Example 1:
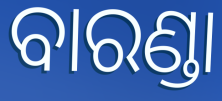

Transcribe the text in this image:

ବାରଣ୍ଡା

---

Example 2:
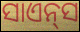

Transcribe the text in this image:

ସାଏନ୍‌ସ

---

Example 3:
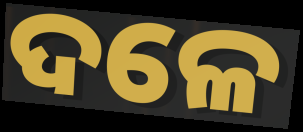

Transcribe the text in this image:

ଦଳେ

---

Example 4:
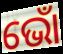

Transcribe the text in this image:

ଭୋଁ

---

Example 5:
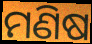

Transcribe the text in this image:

ମଣିଷ